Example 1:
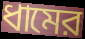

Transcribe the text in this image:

ধামের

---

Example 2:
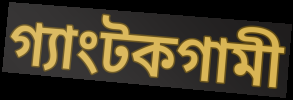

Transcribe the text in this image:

গ্যাংটকগামী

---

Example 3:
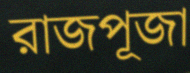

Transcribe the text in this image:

রাজপূজা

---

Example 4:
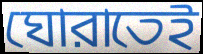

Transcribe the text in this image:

ঘোরাতেই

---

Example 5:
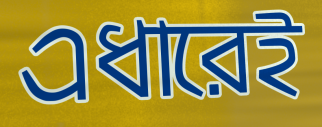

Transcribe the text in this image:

এধারেই